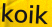
koik